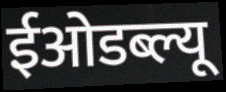
ईओडब्ल्यू